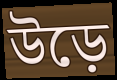
উড়ে